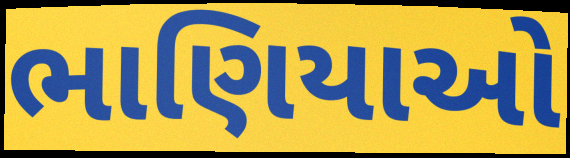
ભાણિયાઓ